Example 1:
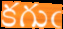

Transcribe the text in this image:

కగుఁ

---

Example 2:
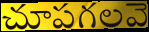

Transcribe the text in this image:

చూపగలవె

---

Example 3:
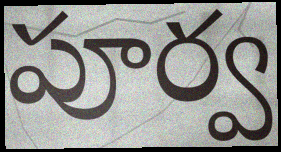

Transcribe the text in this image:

పూర్వ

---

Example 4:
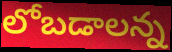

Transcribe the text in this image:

లోబడాలన్న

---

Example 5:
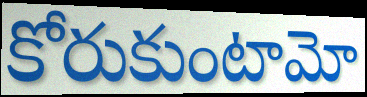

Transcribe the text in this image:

కోరుకుంటామో